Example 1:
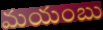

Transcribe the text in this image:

మయంబు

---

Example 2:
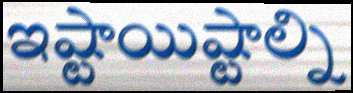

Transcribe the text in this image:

ఇష్టాయిష్టాల్ని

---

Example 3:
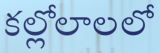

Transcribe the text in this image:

కల్లోలాలలో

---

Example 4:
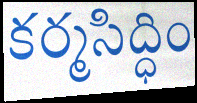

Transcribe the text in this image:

కర్మసిద్ధిం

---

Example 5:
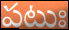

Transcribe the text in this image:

పటుః